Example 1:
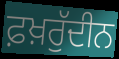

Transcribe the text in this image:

ਫ਼ਖ਼ਰੁੱਦੀਨ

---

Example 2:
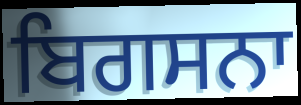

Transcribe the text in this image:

ਬਿਗਸਨਾ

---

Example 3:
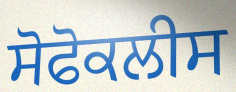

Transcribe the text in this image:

ਸੋਫੋਕਲੀਸ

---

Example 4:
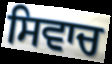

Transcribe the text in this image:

ਸਿਵਾਚ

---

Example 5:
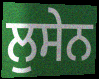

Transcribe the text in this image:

ਲੁਸੇਨ